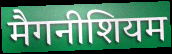
मैगनीशियम